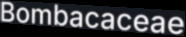
Bombacaceae